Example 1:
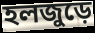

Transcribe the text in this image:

হলজুড়ে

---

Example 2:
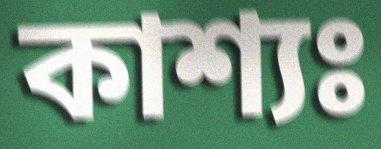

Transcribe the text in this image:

কাশ্যঃ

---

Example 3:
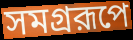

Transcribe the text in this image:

সমগ্ররূপে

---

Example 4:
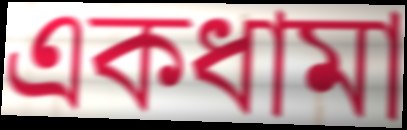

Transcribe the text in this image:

একধামা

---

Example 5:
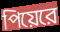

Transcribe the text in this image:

পিয়েরে